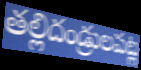
తల్లిదండ్రులపట్ల